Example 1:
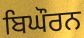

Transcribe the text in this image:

ਬਿਘੌਰਨ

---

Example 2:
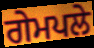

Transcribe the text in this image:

ਗੇਮਪਲੇ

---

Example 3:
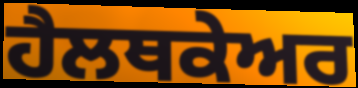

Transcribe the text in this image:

ਹੈਲਥਕੇਅਰ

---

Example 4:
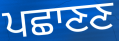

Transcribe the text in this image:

ਪਛਾਣਣ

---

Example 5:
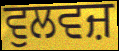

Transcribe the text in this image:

ਵੁਲਵਜ਼